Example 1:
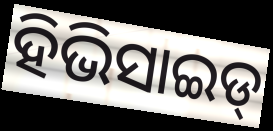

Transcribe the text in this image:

ହିଭିସାଇଡ୍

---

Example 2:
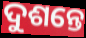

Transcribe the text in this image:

ଦୁଶନ୍ତେ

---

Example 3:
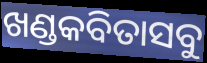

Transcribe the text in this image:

ଖଣ୍ଡକବିତାସବୁ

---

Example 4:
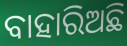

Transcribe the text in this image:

ବାହାରିଅଛି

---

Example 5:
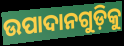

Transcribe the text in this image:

ଉପାଦାନଗୁଡ଼ିକୁ